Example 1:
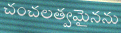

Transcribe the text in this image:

చంచలత్వమైనను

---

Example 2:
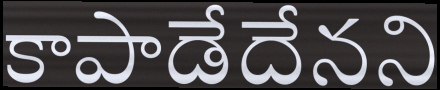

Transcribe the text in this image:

కాపాడేదేనని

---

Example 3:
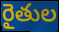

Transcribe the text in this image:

రైతుల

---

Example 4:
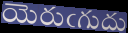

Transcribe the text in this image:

యెరుఁగుదు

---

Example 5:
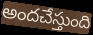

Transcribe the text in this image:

అందచేస్తుంది